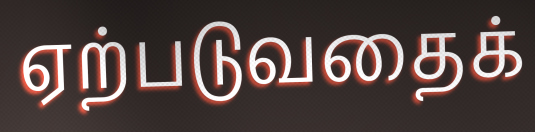
ஏற்படுவதைக்